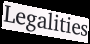
Legalities